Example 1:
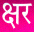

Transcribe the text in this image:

क्षर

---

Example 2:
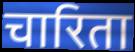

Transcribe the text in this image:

चारिता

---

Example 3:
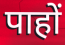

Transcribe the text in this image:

पाहों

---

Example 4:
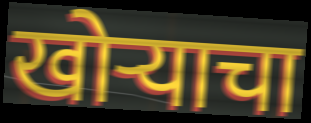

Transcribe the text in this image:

खोर्‍याचा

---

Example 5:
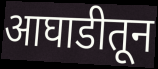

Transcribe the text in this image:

आघाडीतून